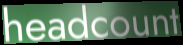
headcount